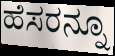
ಹೆಸರನ್ನೂ